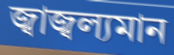
জ্বাজ্বল্যমান